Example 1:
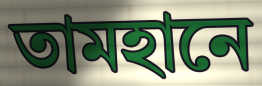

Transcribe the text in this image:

তামহানে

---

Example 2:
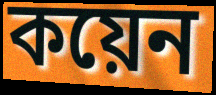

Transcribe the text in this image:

কয়েন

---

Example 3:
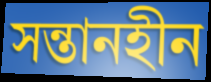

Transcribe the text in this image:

সন্তানহীন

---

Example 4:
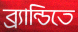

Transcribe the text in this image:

ব্র্যান্ডিতে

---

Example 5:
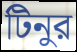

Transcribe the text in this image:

টিনুর